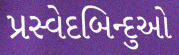
પ્રસ્વેદબિન્દુઓ